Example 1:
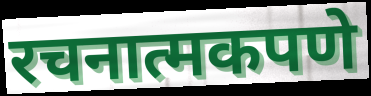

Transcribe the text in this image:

रचनात्मकपणे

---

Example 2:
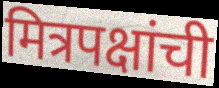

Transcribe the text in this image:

मित्रपक्षांची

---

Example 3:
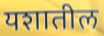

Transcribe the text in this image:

यशातील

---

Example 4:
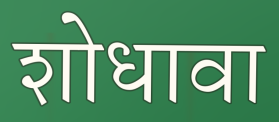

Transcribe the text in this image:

शोधावा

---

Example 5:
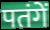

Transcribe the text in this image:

पतंगें